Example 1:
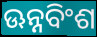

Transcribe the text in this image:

ଊନ୍ନବିଂଶ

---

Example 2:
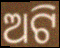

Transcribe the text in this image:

ଅଟି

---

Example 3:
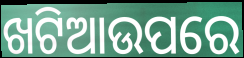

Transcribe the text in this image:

ଖଟିଆଉପରେ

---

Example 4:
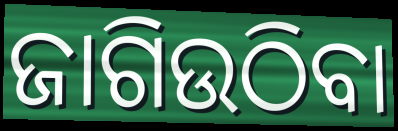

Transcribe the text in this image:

ଜାଗିଉଠିବା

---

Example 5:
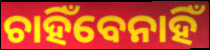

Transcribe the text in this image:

ଚାହିଁବେନାହିଁ